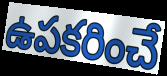
ఉపకరించే